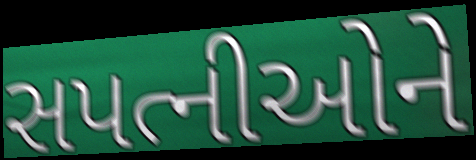
સપત્નીઓને